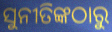
ସୁନୀତିଙ୍କଠାରୁ